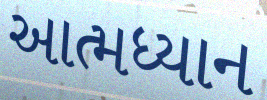
આત્મધ્યાન